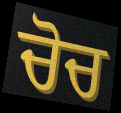
ਚੋਚ